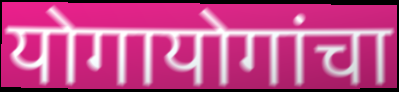
योगायोगांचा